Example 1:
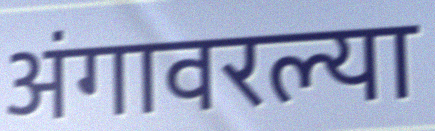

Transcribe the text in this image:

अंगावरल्या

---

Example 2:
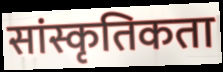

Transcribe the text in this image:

सांस्कृतिकता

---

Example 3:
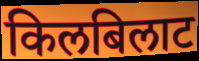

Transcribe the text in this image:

किलबिलाट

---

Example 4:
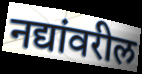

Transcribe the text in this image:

नद्यांवरील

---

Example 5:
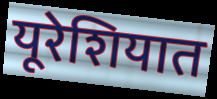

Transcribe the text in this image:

यूरेशियात